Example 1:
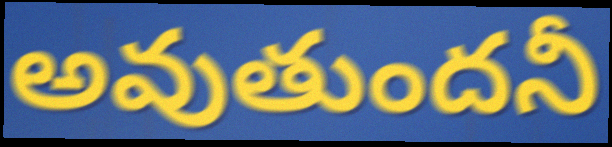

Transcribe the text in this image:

అవుతుందనీ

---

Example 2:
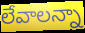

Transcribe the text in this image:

లేవాలన్నా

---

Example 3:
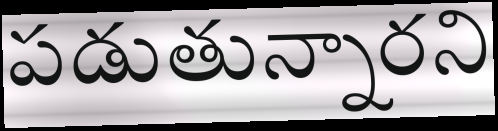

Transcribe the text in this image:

పడుతున్నారని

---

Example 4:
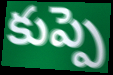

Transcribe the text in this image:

కుప్పె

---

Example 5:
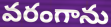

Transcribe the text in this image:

వరంగాను